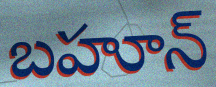
బహూన్